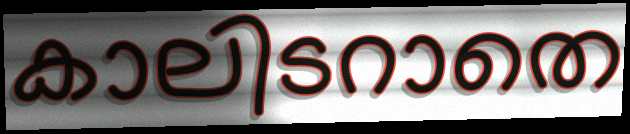
കാലിടറാതെ